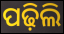
ପଢ଼ିଲି